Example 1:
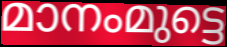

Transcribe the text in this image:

മാനംമുട്ടെ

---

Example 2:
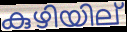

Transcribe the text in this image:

കുഴിയില്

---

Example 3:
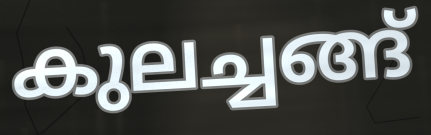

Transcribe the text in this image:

കുലച്ചങ്ങ്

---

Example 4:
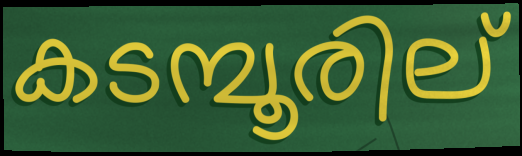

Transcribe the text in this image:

കടമ്പൂരില്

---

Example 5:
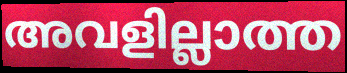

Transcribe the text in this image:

അവളില്ലാത്ത